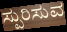
ಸ್ಪುರಿಸುವ